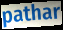
pathar